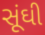
સૂંઘી